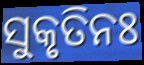
ସୁକୃତିନଃ